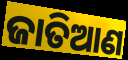
ଜାତିଆଣ